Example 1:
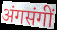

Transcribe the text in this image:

अंगसंगीं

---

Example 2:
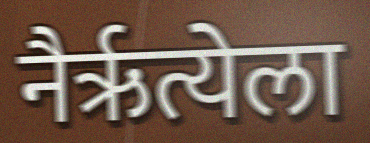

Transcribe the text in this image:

नैर्ऋत्येला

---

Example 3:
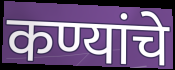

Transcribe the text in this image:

कण्यांचे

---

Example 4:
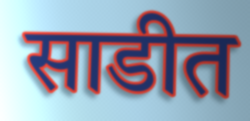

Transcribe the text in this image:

साडीत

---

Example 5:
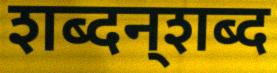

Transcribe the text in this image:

शब्दन्‌शब्द